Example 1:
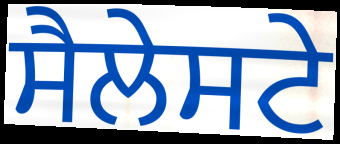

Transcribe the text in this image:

ਸੈਲੇਸਟੇ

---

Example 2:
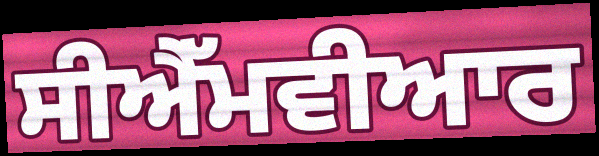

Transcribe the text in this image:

ਸੀਐੱਮਵੀਆਰ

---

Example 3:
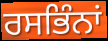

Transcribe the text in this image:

ਰਸਭਿੰਨਾਂ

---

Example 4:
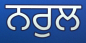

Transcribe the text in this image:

ਨਰੁਲ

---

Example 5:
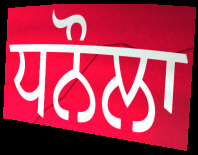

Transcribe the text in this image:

ਧਨੌਲਾ